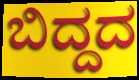
ಬಿದ್ದದ